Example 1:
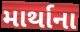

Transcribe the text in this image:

માર્થાના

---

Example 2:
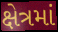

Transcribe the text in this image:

ક્ષેત્રમાં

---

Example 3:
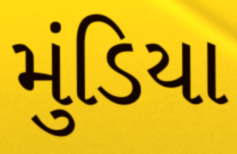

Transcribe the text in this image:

મુંડિયા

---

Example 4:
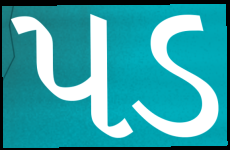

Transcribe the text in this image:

પડ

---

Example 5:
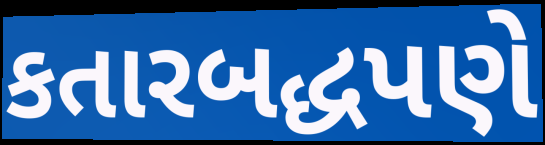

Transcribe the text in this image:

કતારબદ્ધપણે